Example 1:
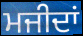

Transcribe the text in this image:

ਮਜੀਦਾਂ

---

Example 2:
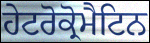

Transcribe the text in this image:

ਹੇਟਰੋਕ੍ਰੋਮੈਟਿਨ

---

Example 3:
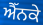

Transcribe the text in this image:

ਐੱਨਕੇ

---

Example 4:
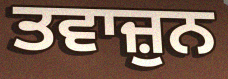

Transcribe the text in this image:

ਤਵਾਜ਼ੁਨ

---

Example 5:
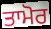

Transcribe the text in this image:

ਤਾਮੋਰ